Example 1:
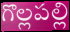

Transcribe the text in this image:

గొల్లపల్లి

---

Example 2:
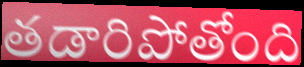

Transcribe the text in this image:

తడారిపోతోంది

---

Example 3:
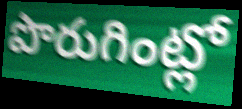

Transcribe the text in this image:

పొరుగింట్లో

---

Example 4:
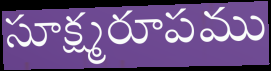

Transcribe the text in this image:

సూక్ష్మరూపము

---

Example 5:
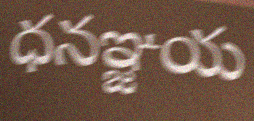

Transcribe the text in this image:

ధనఞ్జయ